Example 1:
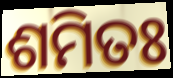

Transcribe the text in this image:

ଶମିତଃ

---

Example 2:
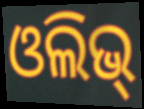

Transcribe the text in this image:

ଓଲିଭ୍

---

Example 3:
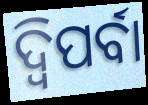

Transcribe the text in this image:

ଦ୍ଵିପର୍ବା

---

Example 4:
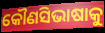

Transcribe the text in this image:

କୌଣସିଭାଷାକୁ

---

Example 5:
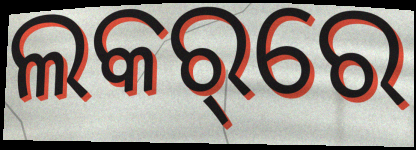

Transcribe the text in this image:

ଲକର୍‌ରେ